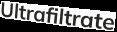
Ultrafiltrate